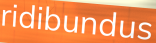
ridibundus